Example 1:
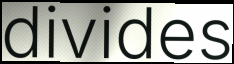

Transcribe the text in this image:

divides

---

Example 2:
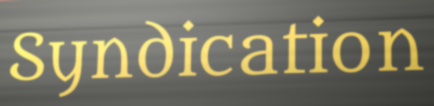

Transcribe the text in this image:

Syndication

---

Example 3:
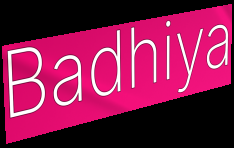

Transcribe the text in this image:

Badhiya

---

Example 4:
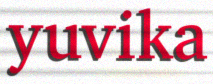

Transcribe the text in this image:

yuvika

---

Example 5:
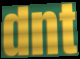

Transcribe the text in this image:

dnt